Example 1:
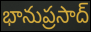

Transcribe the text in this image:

భానుప్రసాద్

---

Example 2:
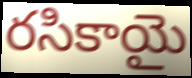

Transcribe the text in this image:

రసికాయై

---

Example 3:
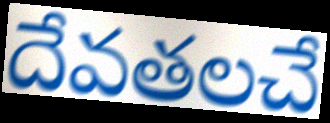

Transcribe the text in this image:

దేవతలచే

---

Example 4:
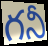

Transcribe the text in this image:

గనీ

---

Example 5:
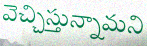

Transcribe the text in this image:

వెచ్చిస్తున్నామని